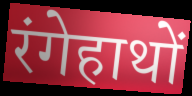
रंगेहाथों